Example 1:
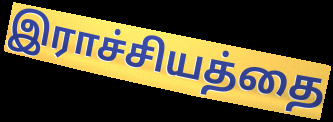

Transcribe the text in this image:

இராச்சியத்தை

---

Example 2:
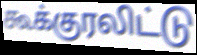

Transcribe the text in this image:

கூக்குரலிட்டு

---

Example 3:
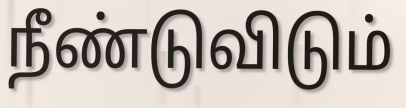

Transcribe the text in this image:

நீண்டுவிடும்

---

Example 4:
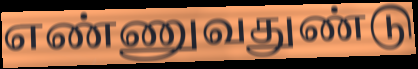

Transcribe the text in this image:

எண்ணுவதுண்டு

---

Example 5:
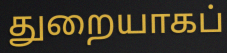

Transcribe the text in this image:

துறையாகப்